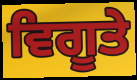
ਵਿਗੂਤੇ